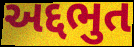
અદ્દભુત